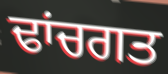
ਢਾਂਚਗਤ